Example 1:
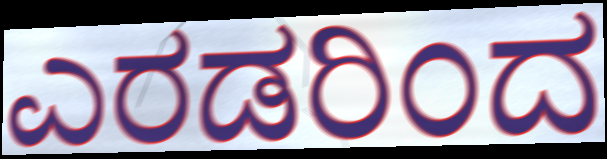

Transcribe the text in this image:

ಎರಡರಿಂದ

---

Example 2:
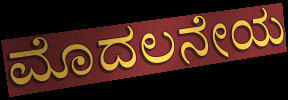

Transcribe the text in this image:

ಮೊದಲನೇಯ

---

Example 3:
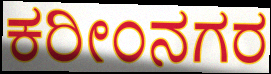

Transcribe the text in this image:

ಕರೀಂನಗರ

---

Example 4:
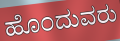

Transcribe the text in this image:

ಹೊಂದುವರು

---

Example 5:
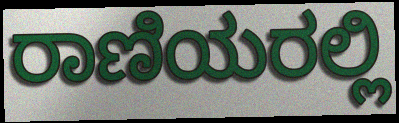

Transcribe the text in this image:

ರಾಣಿಯರಲ್ಲಿ